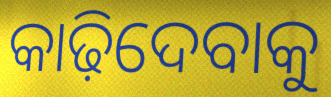
କାଢ଼ିଦେବାକୁ